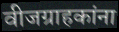
वीजग्राहकांना